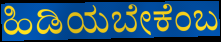
ಹಿಡಿಯಬೇಕೆಂಬ